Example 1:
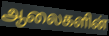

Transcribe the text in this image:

ஆலைகளின்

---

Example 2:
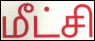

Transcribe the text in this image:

மீட்சி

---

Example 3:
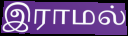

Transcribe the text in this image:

இராமல்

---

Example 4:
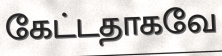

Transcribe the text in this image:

கேட்டதாகவே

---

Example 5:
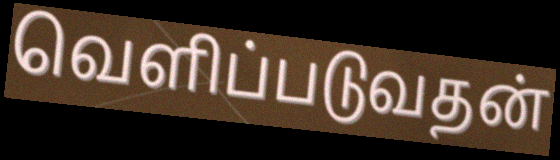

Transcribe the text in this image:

வெளிப்படுவதன்